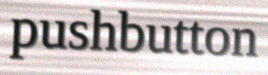
pushbutton